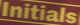
Initials